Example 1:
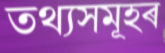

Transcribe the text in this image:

তথ্যসমূহৰ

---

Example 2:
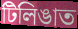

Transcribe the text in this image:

টিলিঙাত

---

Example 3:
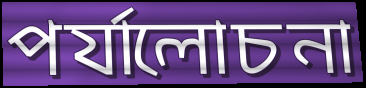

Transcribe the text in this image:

পৰ্যালোচনা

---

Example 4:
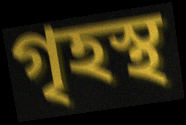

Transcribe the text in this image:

গৃহস্থ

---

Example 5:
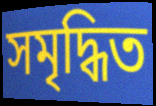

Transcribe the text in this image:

সমৃদ্ধিত